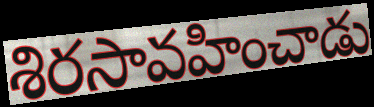
శిరసావహించాడు